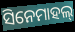
ସିନେମାହଲ୍